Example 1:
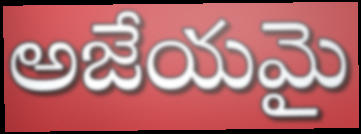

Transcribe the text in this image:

అజేయమై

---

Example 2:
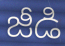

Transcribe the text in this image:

జీడి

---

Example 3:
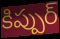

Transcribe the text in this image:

కిప్పుర్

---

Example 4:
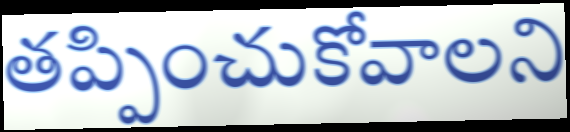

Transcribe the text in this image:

తప్పించుకోవాలని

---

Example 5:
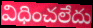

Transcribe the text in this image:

విధించలేదు